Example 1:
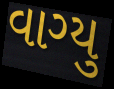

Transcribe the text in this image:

વાગ્યુ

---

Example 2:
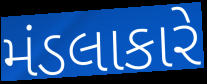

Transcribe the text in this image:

મંડલાકારે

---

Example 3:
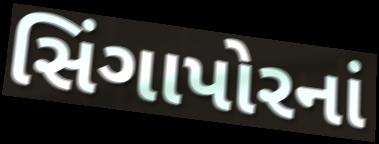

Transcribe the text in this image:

સિંગાપોરનાં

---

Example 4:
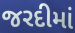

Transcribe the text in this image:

જરદીમાં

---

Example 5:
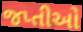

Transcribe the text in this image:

જપ્તીઓ